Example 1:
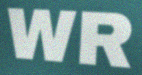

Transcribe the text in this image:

WR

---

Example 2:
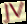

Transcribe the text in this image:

JV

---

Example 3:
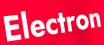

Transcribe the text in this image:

Electron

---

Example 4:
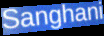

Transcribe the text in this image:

Sanghani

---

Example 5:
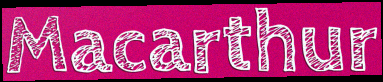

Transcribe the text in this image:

Macarthur